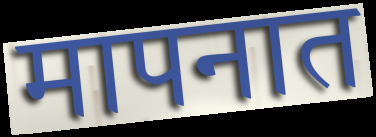
मापनात